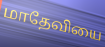
மாதேவியை